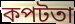
কপটতা